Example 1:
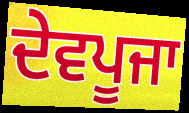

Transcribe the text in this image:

ਦੇਵਪੂਜਾ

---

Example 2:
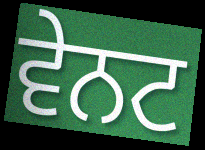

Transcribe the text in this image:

ਵੇਨਟ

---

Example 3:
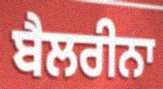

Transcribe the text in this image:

ਬੈਲਰੀਨਾ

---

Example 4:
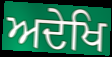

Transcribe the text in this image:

ਅਦੇਖਿ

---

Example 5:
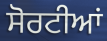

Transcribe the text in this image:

ਸੋਰਟੀਆਂ